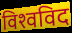
विश्वविद